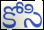
కోసి